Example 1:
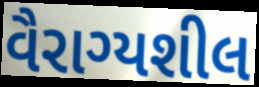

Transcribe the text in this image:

વૈરાગ્યશીલ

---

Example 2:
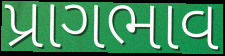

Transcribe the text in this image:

પ્રાગભાવ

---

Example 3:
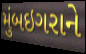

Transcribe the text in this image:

મુંબઇગરાને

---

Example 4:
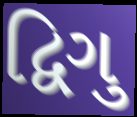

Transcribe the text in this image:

દ્વિગુ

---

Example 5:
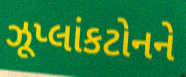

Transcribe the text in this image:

ઝૂપ્લાંકટોનને